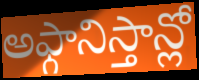
అఫ్గానిస్తాన్లో